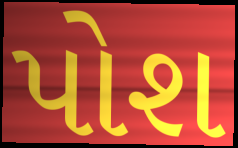
પોશ